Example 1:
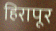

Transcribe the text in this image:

हिरापूर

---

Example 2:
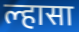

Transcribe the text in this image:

ल्हासा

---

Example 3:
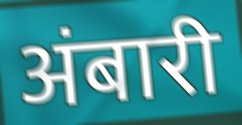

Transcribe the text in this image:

अंबारी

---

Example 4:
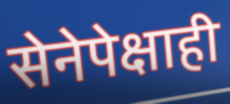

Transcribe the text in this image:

सेनेपेक्षाही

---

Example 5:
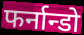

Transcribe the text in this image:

फर्नान्डो